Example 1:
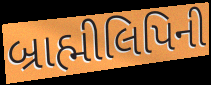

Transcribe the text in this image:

બ્રાહ્મીલિપિની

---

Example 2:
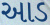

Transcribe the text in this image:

આડ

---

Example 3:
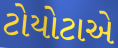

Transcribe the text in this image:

ટોયોટાએ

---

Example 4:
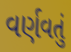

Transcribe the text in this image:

વર્ણવતું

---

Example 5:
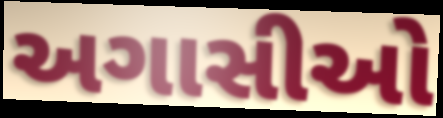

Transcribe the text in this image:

અગાસીઓ